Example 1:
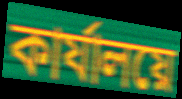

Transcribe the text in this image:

কার্যালয়ে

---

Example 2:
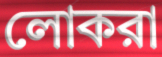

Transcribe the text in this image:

লোকরা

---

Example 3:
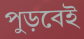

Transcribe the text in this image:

পুড়বেই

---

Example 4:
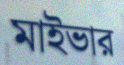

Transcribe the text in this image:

মাইভার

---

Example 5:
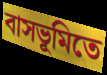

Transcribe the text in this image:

বাসভূমিতে